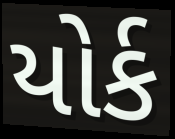
યોર્ક